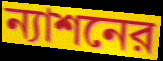
ন্যাশনের